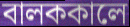
বালককালে